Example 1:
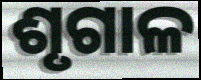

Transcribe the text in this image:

ଶୃଗାଳ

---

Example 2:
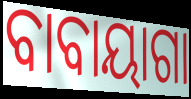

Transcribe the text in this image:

ବାବାୟାଗା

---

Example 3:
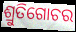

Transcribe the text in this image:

ଶ୍ରୁତିଗୋଚର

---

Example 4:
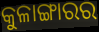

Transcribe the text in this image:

କୁଳାଙ୍ଗାରର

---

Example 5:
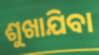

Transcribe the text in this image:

ଶୁଖାଯିବା